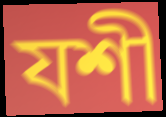
যশী